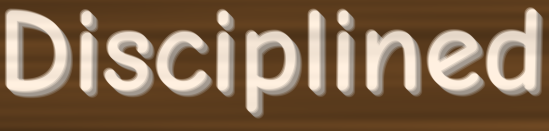
Disciplined